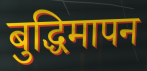
बुद्धिमापन